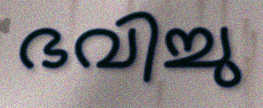
ഭവിച്ചു